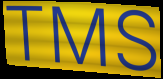
TMS